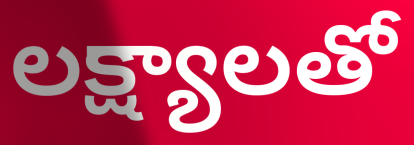
లక్ష్యాలతో